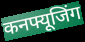
कनफ्यूजिंग